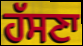
ਹੱਸਣਾ